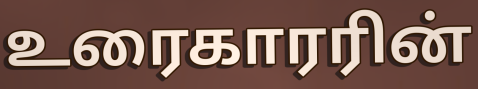
உரைகாரரின்